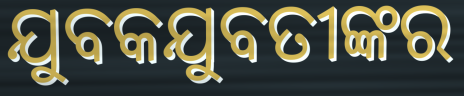
ଯୁବକଯୁବତୀଙ୍କର